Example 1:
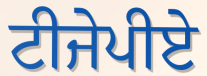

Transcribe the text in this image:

ਟੀਜੇਪੀਏ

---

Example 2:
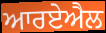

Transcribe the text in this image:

ਆਰਏਐਲ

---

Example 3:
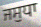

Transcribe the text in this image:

ਜਸੁਧਾ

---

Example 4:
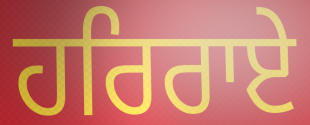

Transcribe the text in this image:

ਹਰਿਰਾਏ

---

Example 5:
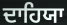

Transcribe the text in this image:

ਦਾਹਿਯਾ